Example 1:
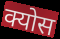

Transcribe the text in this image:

क्योस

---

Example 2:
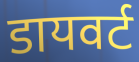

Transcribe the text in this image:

डायवर्ट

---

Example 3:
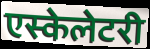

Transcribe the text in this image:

एस्केलेटरी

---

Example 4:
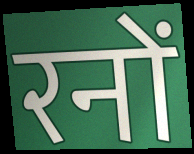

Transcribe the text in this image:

रनों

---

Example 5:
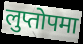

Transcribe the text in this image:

लुप्तोपमा